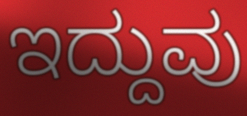
ಇದ್ದುವು